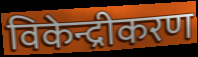
विकेन्द्रीकरण